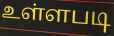
உள்ளபடி